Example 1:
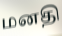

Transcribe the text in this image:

மனதி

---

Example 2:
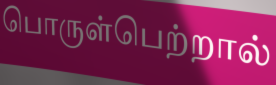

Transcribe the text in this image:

பொருள்பெற்றால்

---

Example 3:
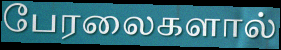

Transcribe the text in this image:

பேரலைகளால்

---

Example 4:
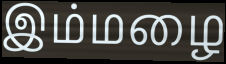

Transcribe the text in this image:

இம்மழை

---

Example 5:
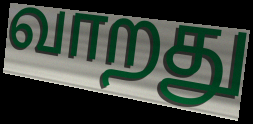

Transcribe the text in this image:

வாறது